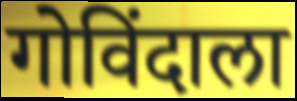
गोविंदाला